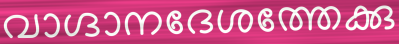
വാഗ്ദാനദേശത്തേക്കു